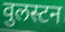
वुलस्टन